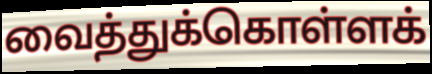
வைத்துக்கொள்ளக்